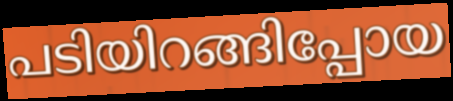
പടിയിറങ്ങിപ്പോയ